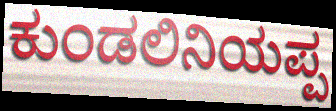
ಕುಂಡಲಿನಿಯಪ್ಪ